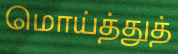
மொய்த்துத்